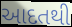
આદતથી